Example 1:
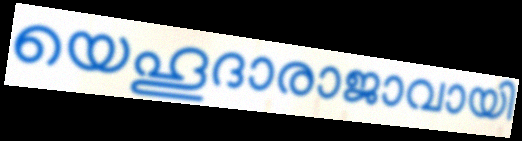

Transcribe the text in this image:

യെഹൂദാരാജാവായി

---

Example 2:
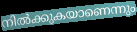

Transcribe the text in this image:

നിൽക്കുകയാണെന്നും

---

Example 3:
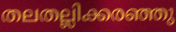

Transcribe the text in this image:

തലതല്ലിക്കരഞ്ഞു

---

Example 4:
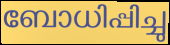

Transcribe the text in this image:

ബോധിപ്പിച്ചു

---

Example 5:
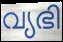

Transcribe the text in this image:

വ്യഭി